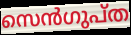
സെൻഗുപ്ത